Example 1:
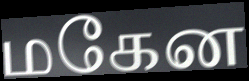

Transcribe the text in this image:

மகேன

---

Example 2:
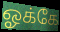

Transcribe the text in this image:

ஓக்கே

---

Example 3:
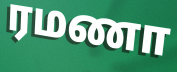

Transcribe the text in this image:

ரமணா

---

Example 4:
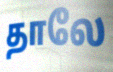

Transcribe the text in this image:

தாலே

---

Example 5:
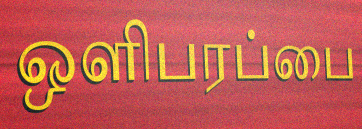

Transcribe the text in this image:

ஒளிபரப்பை